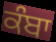
ਕੰਬਾ